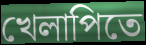
খেলাপিতে